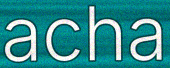
acha